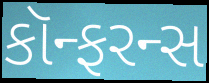
કૉન્ફરન્સ